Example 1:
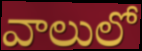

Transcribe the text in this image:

వాలులో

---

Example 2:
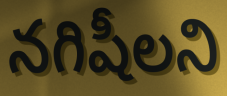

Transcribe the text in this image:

నగిషీలని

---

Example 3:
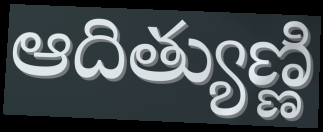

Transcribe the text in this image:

ఆదిత్యుణ్ణి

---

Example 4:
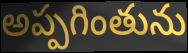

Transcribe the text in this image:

అప్పగింతును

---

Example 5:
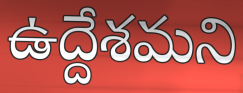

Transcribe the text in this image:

ఉద్దేశమని